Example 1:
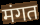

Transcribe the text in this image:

मंगत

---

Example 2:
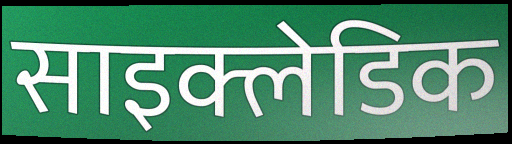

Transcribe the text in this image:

साइक्लेडिक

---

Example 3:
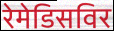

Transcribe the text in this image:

रेमेडिसविर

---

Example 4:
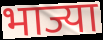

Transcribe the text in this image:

भाज्या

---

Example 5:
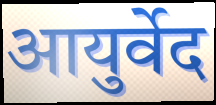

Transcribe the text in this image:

आयुर्वेद